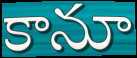
కానూ